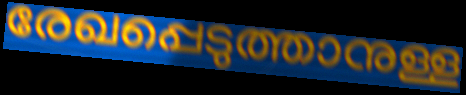
രേഖപ്പെടുത്താനുള്ള